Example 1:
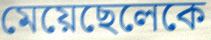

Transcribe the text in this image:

মেয়েছেলেকে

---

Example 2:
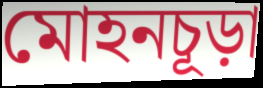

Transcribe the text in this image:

মোহনচূড়া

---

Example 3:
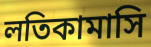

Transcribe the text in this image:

লতিকামাসি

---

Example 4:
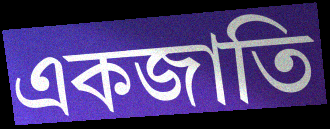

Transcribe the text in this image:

একজাতি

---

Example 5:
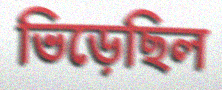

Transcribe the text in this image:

ভিড়েছিল